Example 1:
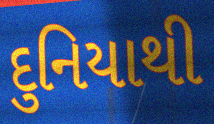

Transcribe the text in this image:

દુનિયાથી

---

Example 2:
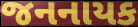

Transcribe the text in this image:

જનનાયક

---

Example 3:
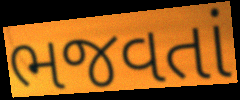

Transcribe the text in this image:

ભજવતાં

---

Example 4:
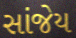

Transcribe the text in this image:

સાંજેય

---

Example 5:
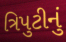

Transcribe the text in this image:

ત્રિપુટીનું